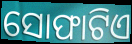
ସୋଫାଟିଏ